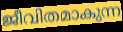
ജീവിതമാകുന്ന